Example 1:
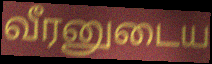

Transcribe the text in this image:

வீரனுடைய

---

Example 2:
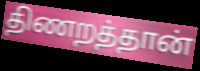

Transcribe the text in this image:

திணறத்தான்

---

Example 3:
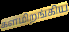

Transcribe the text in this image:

களமிறங்கிய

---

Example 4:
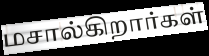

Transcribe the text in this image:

மசால்கிறார்கள்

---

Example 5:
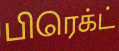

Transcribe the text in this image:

பிரெக்ட்